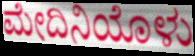
ಮೇದಿನಿಯೊಳು